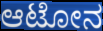
ಆಟೋನ